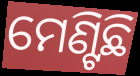
ମେଣ୍ଟିଛି